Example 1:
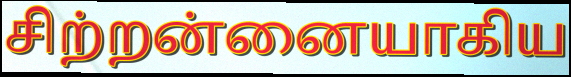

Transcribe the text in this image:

சிற்றன்னையாகிய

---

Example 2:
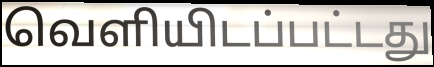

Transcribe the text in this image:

வெளியிடப்பட்டது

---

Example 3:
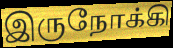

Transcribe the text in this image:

இருநோக்கி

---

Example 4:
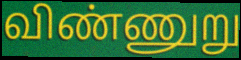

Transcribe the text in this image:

விண்ணுறு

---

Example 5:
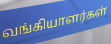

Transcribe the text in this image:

வங்கியாளர்கள்